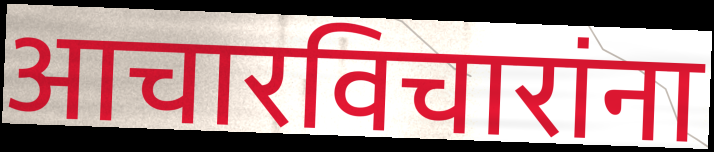
आचारविचारांना